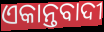
ଏକାନ୍ତବାଦୀ